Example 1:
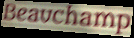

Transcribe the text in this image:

Beauchamp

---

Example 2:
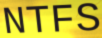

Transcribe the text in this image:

NTFS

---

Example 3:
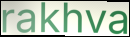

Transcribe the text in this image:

rakhva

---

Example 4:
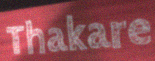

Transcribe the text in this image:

Thakare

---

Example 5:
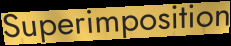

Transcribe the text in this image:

Superimposition